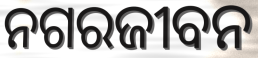
ନଗରଜୀବନ